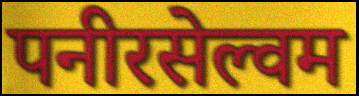
पनीरसेल्वम